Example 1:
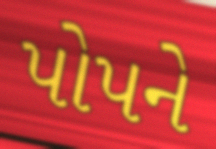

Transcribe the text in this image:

પોપને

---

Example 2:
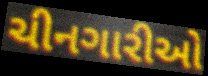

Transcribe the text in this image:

ચીનગારીઓ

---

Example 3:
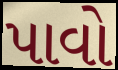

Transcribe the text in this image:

પાવો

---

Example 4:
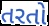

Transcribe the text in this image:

તરતો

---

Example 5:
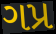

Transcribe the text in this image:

ગપ્ર